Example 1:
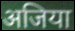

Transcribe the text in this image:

अजिया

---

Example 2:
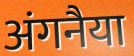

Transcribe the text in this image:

अंगनैया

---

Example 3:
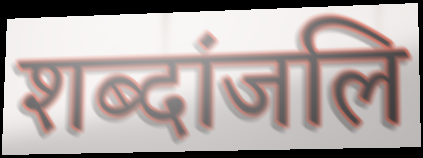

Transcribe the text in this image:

शब्दांजलि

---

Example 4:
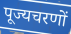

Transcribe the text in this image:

पूज्यचरणों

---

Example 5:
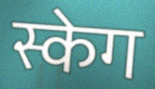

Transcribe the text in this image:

स्केग